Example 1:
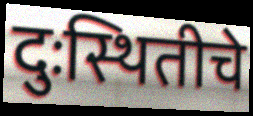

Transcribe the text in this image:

दुःस्थितीचे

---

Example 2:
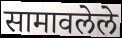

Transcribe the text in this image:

सामावलेले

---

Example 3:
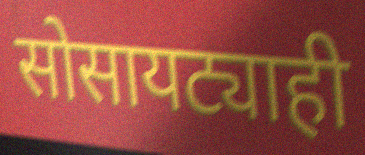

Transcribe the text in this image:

सोसायट्याही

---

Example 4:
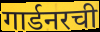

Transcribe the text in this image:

गार्डनरची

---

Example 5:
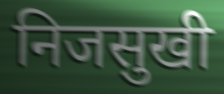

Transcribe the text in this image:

निजसुखी